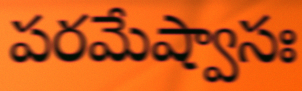
పరమేష్వాసః